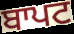
ਬਾਪਟ